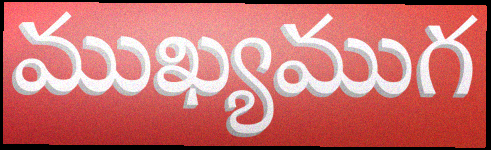
ముఖ్యముగ